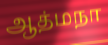
ஆத்மநா